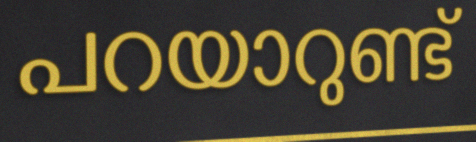
പറയാറുണ്ട്